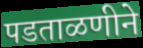
पडताळणीने